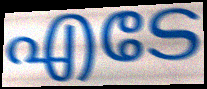
എടേ